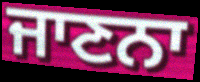
ਜਾਣਨਾ